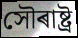
সৌৰাষ্ট্ৰ